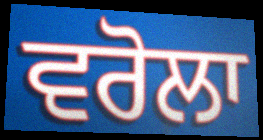
ਵਰੋਲਾ